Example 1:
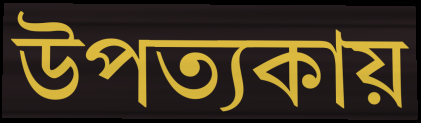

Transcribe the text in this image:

উপত্যকায়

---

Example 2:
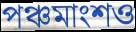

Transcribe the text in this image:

পঞ্চমাংশও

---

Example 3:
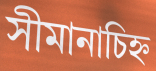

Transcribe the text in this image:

সীমানাচিহ্ন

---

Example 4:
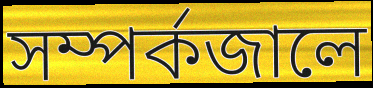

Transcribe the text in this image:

সম্পর্কজালে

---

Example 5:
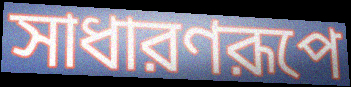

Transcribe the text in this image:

সাধারণরূপে